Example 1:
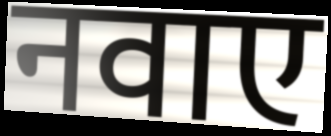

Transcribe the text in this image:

नवाए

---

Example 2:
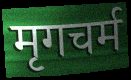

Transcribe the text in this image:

मृगचर्म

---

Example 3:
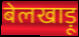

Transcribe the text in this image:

बेलखाड़ू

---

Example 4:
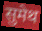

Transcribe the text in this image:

सुमेथ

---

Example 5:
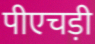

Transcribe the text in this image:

पीएचड़ी